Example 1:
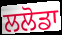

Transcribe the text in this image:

ਲਲੋਡਾ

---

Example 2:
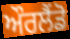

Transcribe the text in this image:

ਔਰਲੈਂਡੋ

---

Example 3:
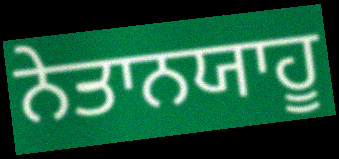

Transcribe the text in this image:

ਨੇਤਾਨਯਾਹੂ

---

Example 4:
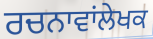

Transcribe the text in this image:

ਰਚਨਾਵਾਂਲੇਖਕ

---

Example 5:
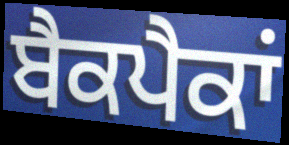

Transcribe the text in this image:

ਬੈਕਪੈਕਾਂ